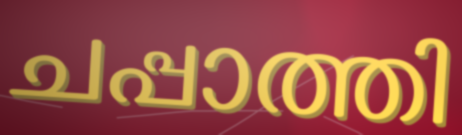
ചപ്പാത്തി